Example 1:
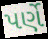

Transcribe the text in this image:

પર્ણે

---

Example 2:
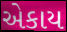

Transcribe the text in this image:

એકાય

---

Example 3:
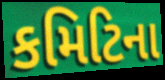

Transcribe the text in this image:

કમિટિના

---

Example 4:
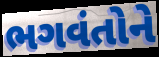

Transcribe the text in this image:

ભગવંતોને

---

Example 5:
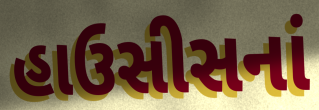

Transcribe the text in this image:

હાઉસીસનાં